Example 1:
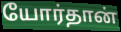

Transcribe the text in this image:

யோர்தான்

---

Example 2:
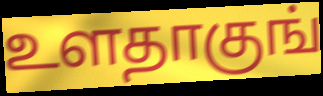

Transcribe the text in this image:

உளதாகுங்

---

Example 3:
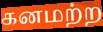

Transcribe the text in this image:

கனமற்ற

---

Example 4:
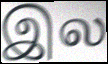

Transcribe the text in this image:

இல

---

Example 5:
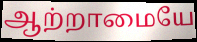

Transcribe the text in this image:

ஆற்றாமையே